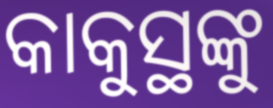
କାକୁସ୍ଥଙ୍କୁ